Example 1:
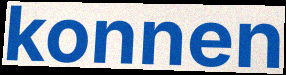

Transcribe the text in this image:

konnen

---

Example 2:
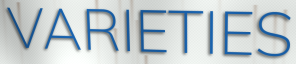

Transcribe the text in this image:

VARIETIES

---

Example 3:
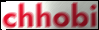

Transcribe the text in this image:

chhobi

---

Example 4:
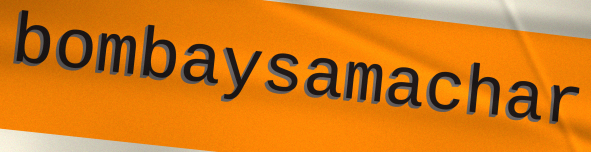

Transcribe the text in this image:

bombaysamachar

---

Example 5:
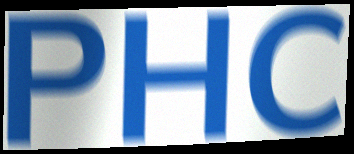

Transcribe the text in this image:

PHC